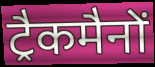
ट्रैकमैनों